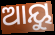
ଆୟୁ